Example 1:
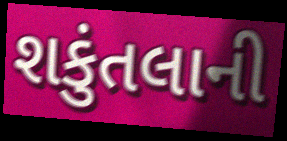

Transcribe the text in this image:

શકુંતલાની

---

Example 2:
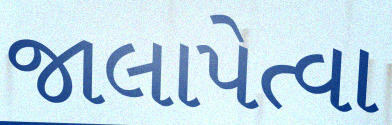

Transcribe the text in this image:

જાલાપેત્વા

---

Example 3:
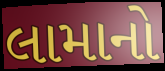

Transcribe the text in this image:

લામાનો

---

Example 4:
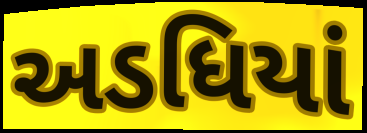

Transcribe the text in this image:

અડધિયાં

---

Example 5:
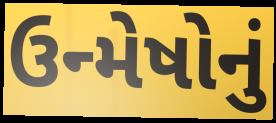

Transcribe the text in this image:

ઉન્મેષોનું